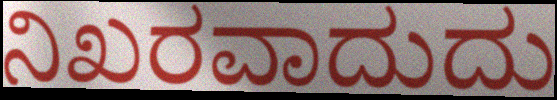
ನಿಖರವಾದುದು